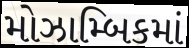
મોઝામ્બિકમાં